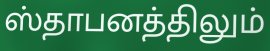
ஸ்தாபனத்திலும்